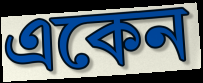
একেন